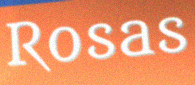
Rosas